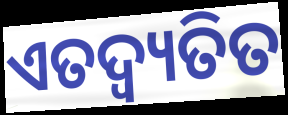
ଏତଦ୍ବ୍ୟତିତ